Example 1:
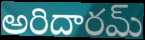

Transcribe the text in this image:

అరిదారమ్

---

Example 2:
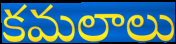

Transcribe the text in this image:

కమలాలు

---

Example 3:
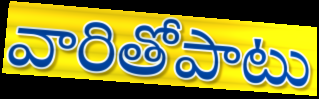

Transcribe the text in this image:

వారితోపాటు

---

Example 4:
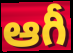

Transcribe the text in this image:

ఆగీ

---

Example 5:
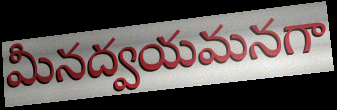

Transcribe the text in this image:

మీనద్వయమనగా